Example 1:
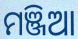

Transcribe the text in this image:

ମଞ୍ଜିଆ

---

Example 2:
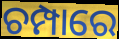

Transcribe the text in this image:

ଚମ୍ପାରେ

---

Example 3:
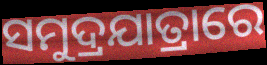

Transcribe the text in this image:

ସମୁଦ୍ରଯାତ୍ରାରେ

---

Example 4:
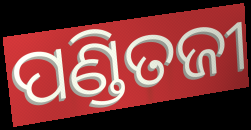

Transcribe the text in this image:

ପଣ୍ଡିତଜୀ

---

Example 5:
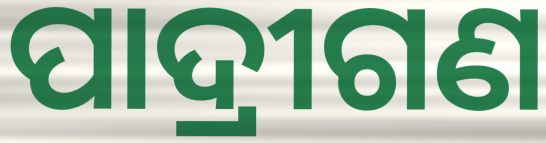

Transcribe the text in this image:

ପାଦ୍ରୀଗଣ